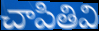
చాపితివి